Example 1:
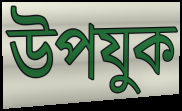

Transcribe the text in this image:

উপযুক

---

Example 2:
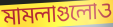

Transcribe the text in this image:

মামলাগুলোও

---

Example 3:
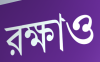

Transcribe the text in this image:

রক্ষাও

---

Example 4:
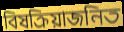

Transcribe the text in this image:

বিষক্রিয়াজনিত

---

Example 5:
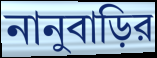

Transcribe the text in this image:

নানুবাড়ির